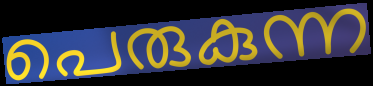
പെരുകുന്ന